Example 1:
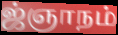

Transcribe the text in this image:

ஜ்ஞாநம்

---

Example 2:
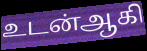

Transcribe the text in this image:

உடன்ஆகி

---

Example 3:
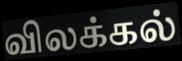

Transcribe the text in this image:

விலக்கல்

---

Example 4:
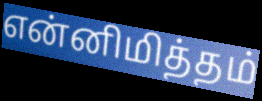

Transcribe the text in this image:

என்னிமித்தம்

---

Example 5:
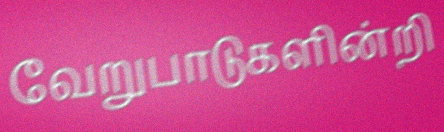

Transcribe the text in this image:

வேறுபாடுகளின்றி